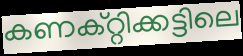
കണക്റ്റിക്കട്ടിലെ